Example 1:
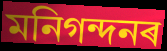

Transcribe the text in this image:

মনিগন্দনৰ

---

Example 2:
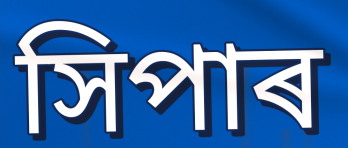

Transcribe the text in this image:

সিপাৰ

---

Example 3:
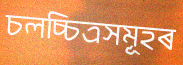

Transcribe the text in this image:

চলচ্চিত্ৰসমূহৰ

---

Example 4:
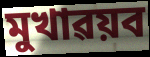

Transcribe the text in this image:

মুখাৱয়ব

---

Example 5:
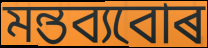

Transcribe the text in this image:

মন্তব্যবোৰ